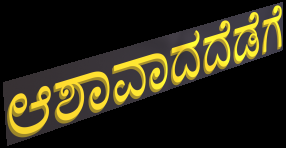
ಆಶಾವಾದದೆಡೆಗೆ